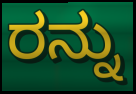
ರನ್ನು